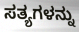
ಸತ್ಯಗಳನ್ನು